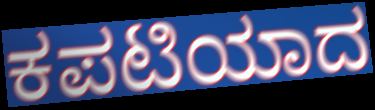
ಕಪಟಿಯಾದ